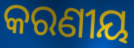
କରଣୀୟ